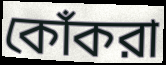
কোঁকরা